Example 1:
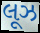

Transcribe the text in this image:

લૂઝ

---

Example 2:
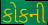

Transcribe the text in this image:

કોકની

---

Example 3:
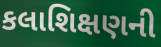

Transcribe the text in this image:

કલાશિક્ષણની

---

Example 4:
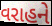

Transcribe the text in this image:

વરાહને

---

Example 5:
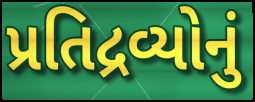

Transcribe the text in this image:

પ્રતિદ્રવ્યોનું